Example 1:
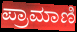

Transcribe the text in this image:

ಪ್ರಾಮಾಣಿ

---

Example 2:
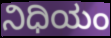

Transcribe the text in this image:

ನಿಧಿಯಂ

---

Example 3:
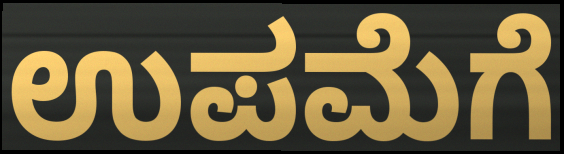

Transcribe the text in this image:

ಉಪಮೆಗೆ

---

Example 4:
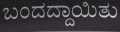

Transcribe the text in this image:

ಬಂದದ್ದಾಯಿತು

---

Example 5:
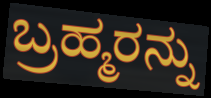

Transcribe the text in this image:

ಬ್ರಹ್ಮರನ್ನು